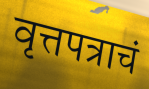
वृत्तपत्राचं